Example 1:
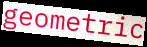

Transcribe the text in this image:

geometric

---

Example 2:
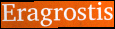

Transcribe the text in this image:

Eragrostis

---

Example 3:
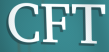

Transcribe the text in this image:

CFT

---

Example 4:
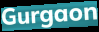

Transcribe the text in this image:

Gurgaon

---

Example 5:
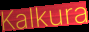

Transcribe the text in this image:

Kalkura